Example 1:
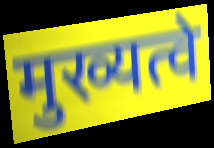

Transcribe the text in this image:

मुख्यत्वे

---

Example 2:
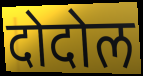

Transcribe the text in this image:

दोदोल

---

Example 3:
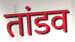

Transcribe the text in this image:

तांडव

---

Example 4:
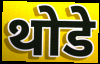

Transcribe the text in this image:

थोडे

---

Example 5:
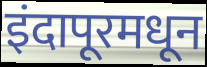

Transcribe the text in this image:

इंदापूरमधून